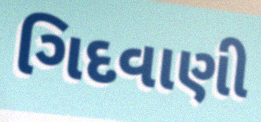
ગિદવાણી